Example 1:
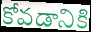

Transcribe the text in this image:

కోవడానికి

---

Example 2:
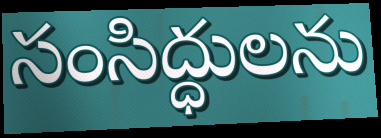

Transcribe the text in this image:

సంసిద్ధులను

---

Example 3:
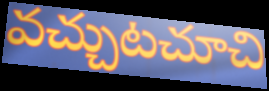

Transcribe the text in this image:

వచ్చుటచూచి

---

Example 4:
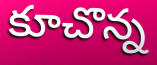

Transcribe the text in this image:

కూచొన్న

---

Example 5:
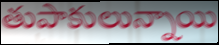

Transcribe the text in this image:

తుపాకులున్నాయి